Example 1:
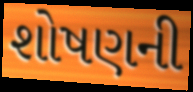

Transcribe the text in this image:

શોષણની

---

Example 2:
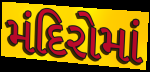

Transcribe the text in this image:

મંદિરોમાં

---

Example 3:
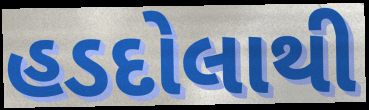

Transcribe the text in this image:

હડદોલાથી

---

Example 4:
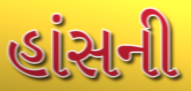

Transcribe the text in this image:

હાંસની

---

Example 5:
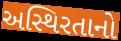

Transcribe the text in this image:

અસ્થિરતાનો